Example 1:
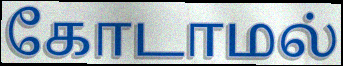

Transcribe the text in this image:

கோடாமல்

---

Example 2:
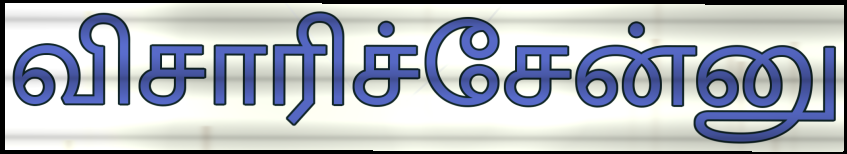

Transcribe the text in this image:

விசாரிச்சேன்னு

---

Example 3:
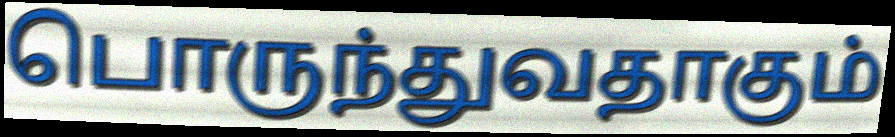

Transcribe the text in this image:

பொருந்துவதாகும்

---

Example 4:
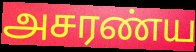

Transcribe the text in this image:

அசரண்ய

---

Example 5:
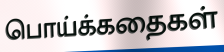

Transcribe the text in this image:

பொய்க்கதைகள்